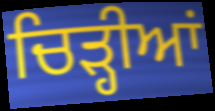
ਚਿੜ੍ਹੀਆਂ